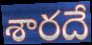
శారదే